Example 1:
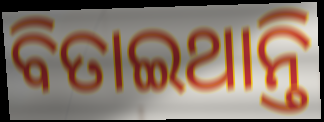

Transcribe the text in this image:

ବିତାଇଥାନ୍ତି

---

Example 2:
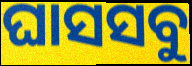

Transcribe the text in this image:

ଘାସସବୁ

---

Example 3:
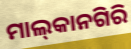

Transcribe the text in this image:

ମାଲ୍‌କାନଗିରି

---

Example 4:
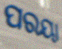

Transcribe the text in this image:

ପରୟା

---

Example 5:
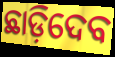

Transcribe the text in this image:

ଛାଡ଼ିଦେବ